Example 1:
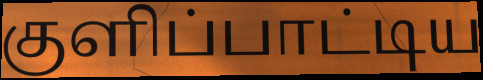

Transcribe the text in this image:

குளிப்பாட்டிய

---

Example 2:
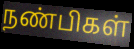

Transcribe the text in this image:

நண்பிகள்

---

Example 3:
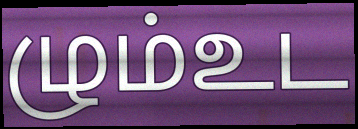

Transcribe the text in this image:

ழும்உட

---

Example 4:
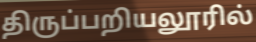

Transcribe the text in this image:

திருப்பறியலூரில்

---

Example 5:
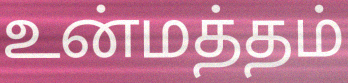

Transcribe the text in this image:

உன்மத்தம்